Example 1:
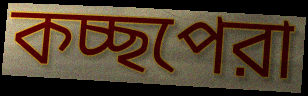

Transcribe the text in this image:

কচ্ছপেরা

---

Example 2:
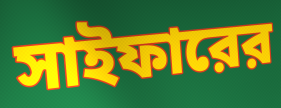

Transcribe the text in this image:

সাইফারের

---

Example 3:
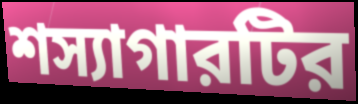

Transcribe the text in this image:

শস্যাগারটির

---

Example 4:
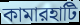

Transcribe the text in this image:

কামারহাটি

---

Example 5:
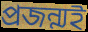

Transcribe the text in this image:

প্রজন্মই